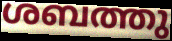
ശബത്തു